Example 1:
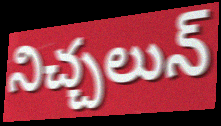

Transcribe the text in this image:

నిచ్చలున్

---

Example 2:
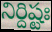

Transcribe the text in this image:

నిర్దిష్టః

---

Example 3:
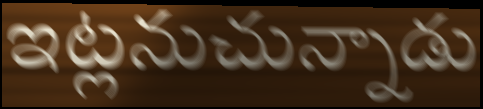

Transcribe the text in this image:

ఇట్లనుచున్నాడు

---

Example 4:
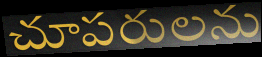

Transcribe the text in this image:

చూపరులను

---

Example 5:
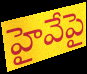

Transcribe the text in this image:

హైవేపై